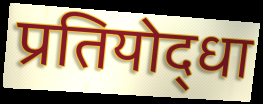
प्रतियोद्धा